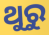
ଥୁରୁ